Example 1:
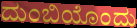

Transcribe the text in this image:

ದುಂಬಿಯೊಂದು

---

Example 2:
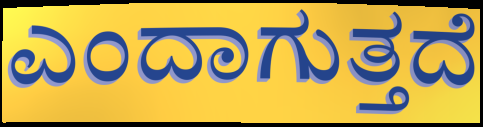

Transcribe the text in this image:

ಎಂದಾಗುತ್ತದೆ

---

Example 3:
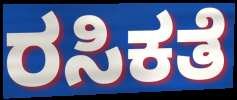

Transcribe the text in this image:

ರಸಿಕತೆ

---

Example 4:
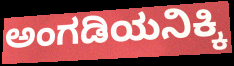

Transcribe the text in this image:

ಅಂಗಡಿಯನಿಕ್ಕಿ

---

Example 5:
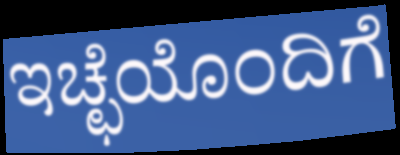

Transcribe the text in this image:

ಇಚ್ಛೆಯೊಂದಿಗೆ